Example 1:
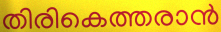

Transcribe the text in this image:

തിരികെത്തരാൻ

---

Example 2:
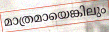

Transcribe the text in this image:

മാത്രമായെങ്കിലും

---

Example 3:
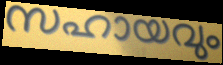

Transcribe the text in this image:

സഹായവും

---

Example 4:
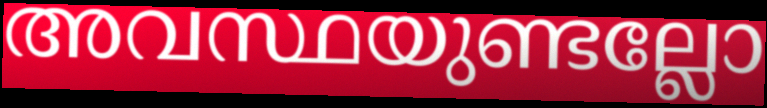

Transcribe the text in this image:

അവസ്ഥയുണ്ടല്ലോ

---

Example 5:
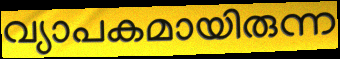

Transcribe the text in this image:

വ്യാപകമായിരുന്ന